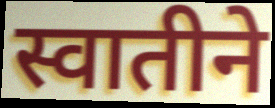
स्वातीने